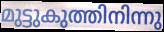
മുട്ടുകുത്തിനിന്നു